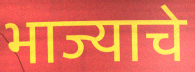
भाज्याचे